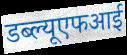
डब्ल्यूएफआई